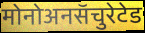
मोनोअनसॅचुरेटेड